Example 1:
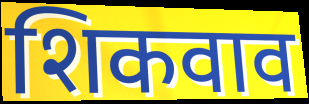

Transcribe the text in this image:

शिकवाव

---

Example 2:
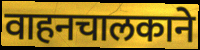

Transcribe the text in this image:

वाहनचालकाने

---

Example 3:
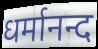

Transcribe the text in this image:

धर्मानन्द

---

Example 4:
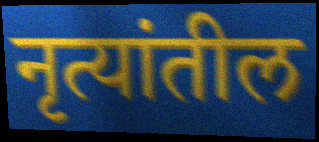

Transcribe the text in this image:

नृत्यांतील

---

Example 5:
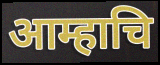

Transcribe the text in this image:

आम्हाचि